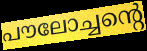
പൗലോച്ചന്റെ